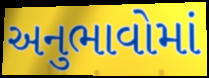
અનુભાવોમાં